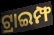
ଟ୍ରାଇମ୍ଫ